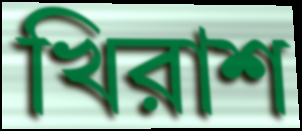
খিরাশ